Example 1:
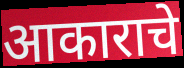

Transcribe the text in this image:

आकाराचे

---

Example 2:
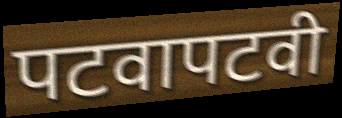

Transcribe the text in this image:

पटवापटवी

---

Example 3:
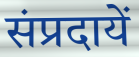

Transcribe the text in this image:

संप्रदायें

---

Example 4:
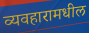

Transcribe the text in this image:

व्यवहारामधील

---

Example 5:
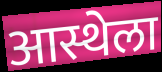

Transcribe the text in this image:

आस्थेला